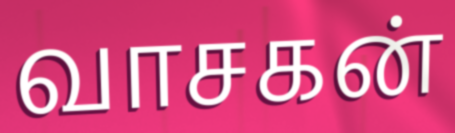
வாசகன்